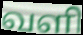
வளி